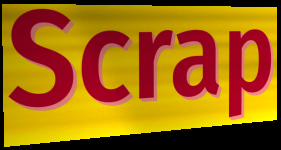
Scrap